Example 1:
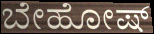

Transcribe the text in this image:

ಬೇಹೋಷ್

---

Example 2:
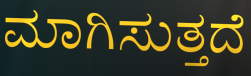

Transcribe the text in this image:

ಮಾಗಿಸುತ್ತದೆ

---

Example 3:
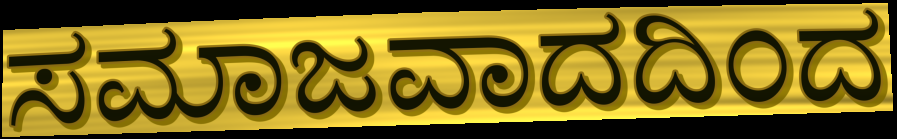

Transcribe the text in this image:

ಸಮಾಜವಾದದಿಂದ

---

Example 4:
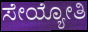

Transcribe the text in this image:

ಸೇಯ್ಯೋತಿ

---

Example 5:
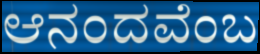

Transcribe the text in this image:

ಆನಂದವೆಂಬ